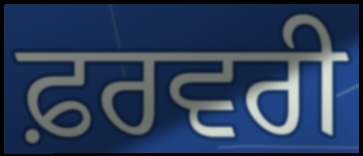
ਫ਼ਰਵਰੀ